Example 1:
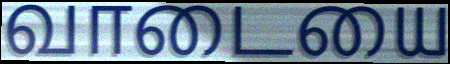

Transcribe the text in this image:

வாடையை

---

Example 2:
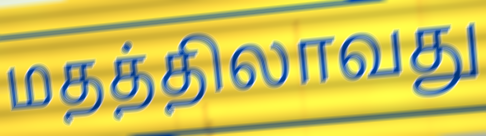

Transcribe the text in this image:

மதத்திலாவது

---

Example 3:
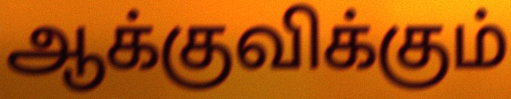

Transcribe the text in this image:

ஆக்குவிக்கும்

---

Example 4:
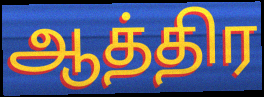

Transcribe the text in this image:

ஆத்திர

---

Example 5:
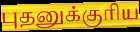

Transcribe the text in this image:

புதனுக்குரிய